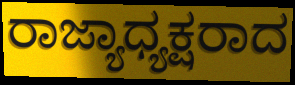
ರಾಜ್ಯಾಧ್ಯಕ್ಷರಾದ